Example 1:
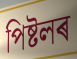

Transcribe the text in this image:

পিষ্টলৰ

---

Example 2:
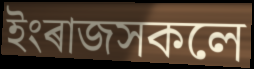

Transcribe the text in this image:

ইংৰাজসকলে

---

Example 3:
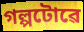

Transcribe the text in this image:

গল্পটোৱে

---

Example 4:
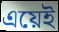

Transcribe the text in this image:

এয়েই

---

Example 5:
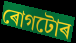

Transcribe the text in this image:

ৰোগটোৰ